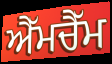
ਐੱਮਚੈੱਮ